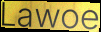
Lawoe